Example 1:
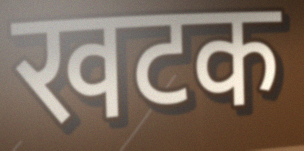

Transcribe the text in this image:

खटक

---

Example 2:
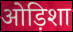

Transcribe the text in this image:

ओड़िशा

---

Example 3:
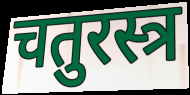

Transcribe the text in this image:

चतुरस्त्र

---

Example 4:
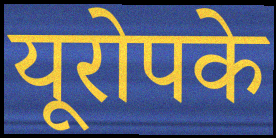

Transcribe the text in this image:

यूरोपके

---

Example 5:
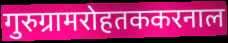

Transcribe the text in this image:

गुरुग्रामरोहतककरनाल